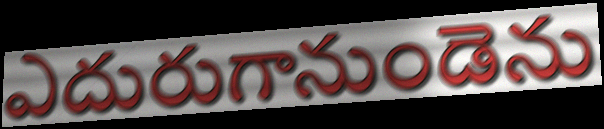
ఎదురుగానుండెను